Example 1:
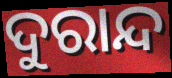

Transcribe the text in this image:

ଦୁରାନ୍ଦ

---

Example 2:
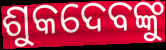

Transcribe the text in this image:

ଶୁକଦେବଙ୍କୁ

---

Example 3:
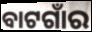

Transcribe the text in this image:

ବାଟଗାଁର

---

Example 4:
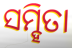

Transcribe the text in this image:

ସମ୍ହିତା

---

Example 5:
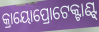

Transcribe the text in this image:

କ୍ରାୟୋପ୍ରୋଟେକ୍ଟାଣ୍ଟ୍